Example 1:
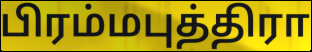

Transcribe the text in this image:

பிரம்மபுத்திரா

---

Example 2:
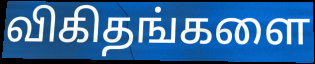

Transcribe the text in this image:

விகிதங்களை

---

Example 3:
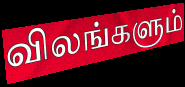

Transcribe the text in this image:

விலங்களும்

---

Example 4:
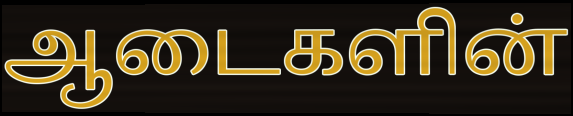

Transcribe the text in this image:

ஆடைகளின்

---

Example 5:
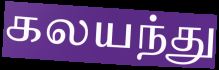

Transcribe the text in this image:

கலயந்து